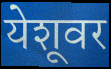
येशूवर